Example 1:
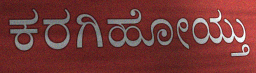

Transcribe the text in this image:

ಕರಗಿಹೋಯ್ತು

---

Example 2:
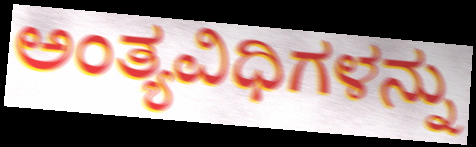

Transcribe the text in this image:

ಅಂತ್ಯವಿಧಿಗಳನ್ನು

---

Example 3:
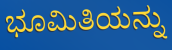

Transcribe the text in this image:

ಭೂಮಿತಿಯನ್ನು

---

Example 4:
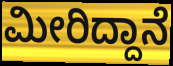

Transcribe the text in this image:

ಮೀರಿದ್ದಾನೆ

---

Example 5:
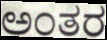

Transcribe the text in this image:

ಅಂತರ